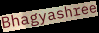
Bhagyashree